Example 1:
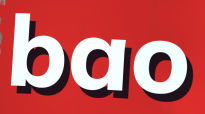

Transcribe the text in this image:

bao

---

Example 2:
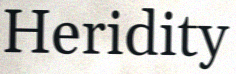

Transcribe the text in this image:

Heridity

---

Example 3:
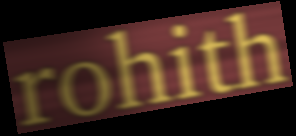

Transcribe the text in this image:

rohith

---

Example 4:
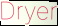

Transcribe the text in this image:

Dryer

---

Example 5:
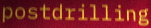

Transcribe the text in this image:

postdrilling